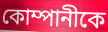
কোম্পানীকে